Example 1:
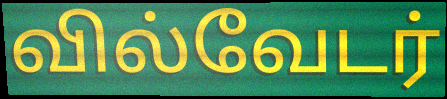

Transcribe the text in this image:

வில்வேடர்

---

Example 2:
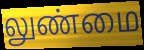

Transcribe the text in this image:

லுண்மை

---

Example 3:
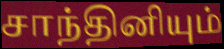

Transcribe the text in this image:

சாந்தினியும்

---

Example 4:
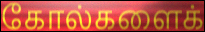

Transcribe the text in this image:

கோல்களைக்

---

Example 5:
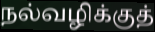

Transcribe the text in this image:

நல்வழிக்குத்